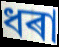
ধৰা